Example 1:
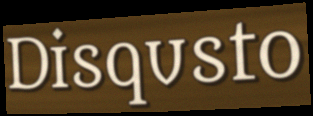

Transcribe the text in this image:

Disqusto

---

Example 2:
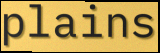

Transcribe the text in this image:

plains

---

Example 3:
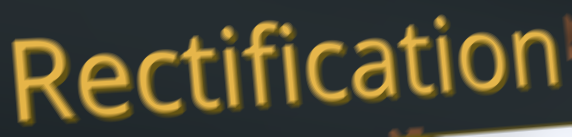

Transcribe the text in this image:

Rectification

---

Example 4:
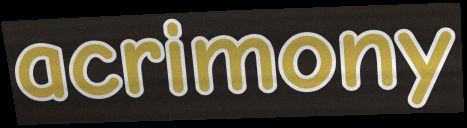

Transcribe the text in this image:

acrimony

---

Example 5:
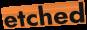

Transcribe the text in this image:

etched